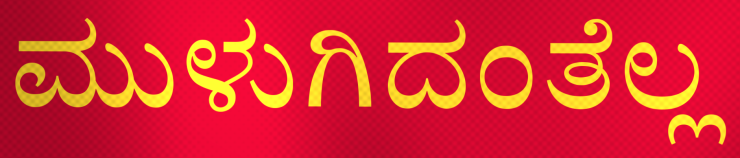
ಮುಳುಗಿದಂತೆಲ್ಲ